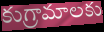
కుగ్రామాలకు